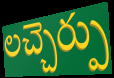
లచ్చెర్పు